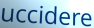
uccidere